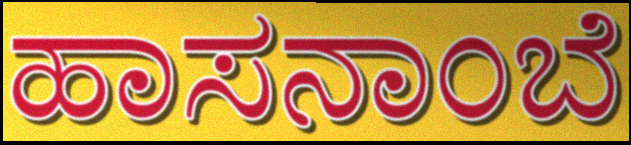
ಹಾಸನಾಂಬೆ